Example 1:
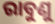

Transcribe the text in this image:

ରାବୁଣୁ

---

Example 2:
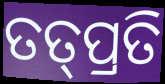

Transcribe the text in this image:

ତତ୍‌ପ୍ରତି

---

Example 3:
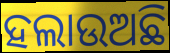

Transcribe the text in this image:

ହଲାଉଅଛି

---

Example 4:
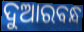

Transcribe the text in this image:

ଦୁଆରବନ୍ଧ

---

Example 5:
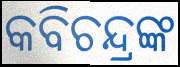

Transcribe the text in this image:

କବିଚନ୍ଦ୍ରଙ୍କ